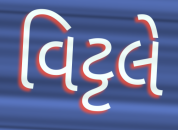
વિટ્ટલે